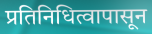
प्रतिनिधित्वापासून